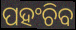
ପହଂଚିବ